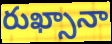
రుఖ్సానా